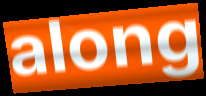
along